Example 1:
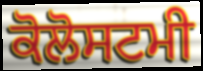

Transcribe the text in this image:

ਕੋਲੋਸਟਮੀ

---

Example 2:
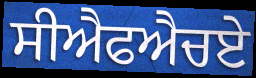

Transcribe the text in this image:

ਸੀਐਫਐਚਏ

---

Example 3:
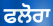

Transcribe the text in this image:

ਫਲੋਰਾ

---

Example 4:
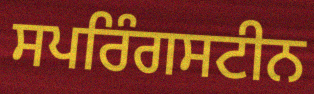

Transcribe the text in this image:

ਸਪਰਿੰਗਸਟੀਨ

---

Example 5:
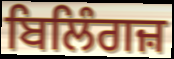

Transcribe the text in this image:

ਬਿਲਿੰਗਜ਼